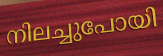
നിലച്ചുപോയി